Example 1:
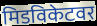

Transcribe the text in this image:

मिडविकेटवर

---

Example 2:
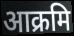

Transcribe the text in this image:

आक्रमि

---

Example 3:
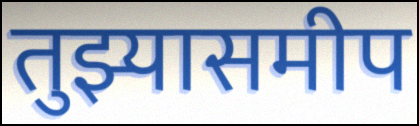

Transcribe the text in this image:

तुझ्यासमीप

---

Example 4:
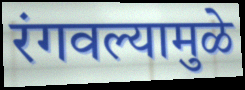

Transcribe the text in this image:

रंगवल्यामुळे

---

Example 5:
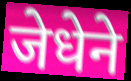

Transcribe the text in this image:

जेधेने